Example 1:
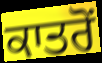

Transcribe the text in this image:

ਕਾਤਰੋੰ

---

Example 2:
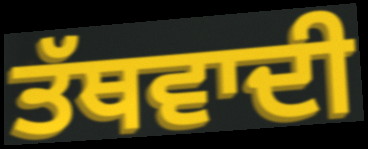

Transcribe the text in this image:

ਤੱਥਵਾਦੀ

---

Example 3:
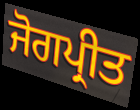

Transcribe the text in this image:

ਜੋਗਪ੍ਰੀਤ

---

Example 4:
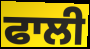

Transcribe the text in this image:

ਫਾਲੀ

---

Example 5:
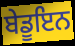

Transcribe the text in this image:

ਬੇਡੂਇਨ